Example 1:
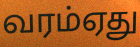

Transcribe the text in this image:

வரம்ஏது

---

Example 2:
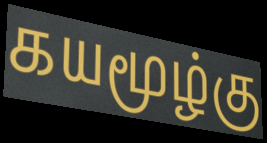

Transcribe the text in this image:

கயமூழ்கு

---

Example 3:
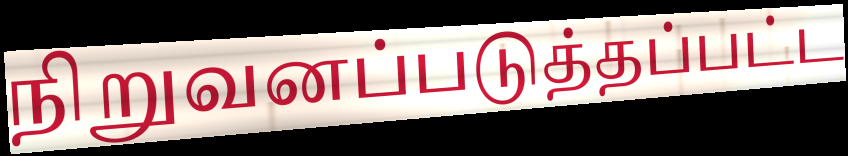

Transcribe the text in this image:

நிறுவனப்படுத்தப்பட்ட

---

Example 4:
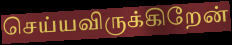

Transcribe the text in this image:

செய்யவிருக்கிறேன்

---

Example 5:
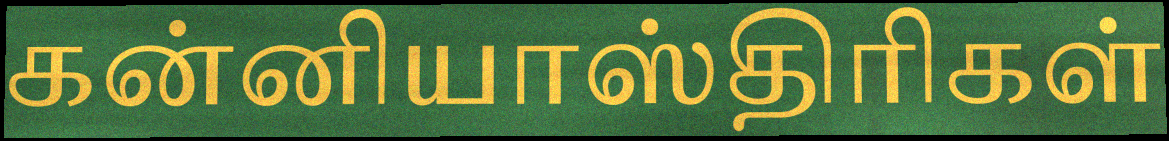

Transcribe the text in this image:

கன்னியாஸ்திரிகள்